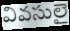
వివసులై